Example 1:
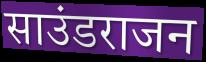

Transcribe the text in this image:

साउंडराजन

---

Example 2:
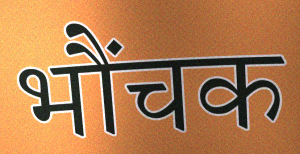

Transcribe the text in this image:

भौंचक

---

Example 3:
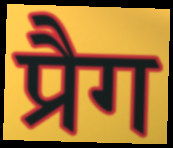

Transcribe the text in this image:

प्रैग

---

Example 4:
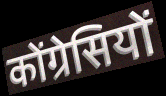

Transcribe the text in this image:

कोंग्रेसियों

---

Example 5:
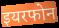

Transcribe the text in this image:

इयरफोन